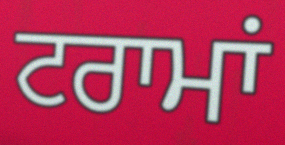
ਟਰਾਮਾਂ